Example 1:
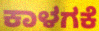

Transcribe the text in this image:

ಕಾಳಗಕೆ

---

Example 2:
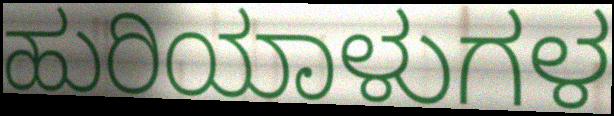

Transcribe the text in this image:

ಹುರಿಯಾಳುಗಳ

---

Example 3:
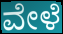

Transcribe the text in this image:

ವೇಳೆ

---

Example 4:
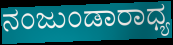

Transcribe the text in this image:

ನಂಜುಂಡಾರಾಧ್ಯ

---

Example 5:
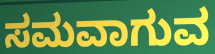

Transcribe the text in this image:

ಸಮವಾಗುವ